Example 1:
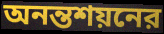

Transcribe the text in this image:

অনন্তশয়নের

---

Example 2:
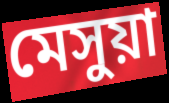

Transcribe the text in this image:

মেসুয়া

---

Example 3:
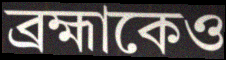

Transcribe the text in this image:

ব্রহ্মাকেও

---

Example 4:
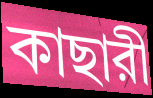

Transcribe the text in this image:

কাছারী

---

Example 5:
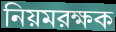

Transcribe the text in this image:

নিয়মরক্ষক